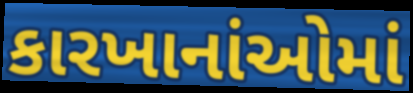
કારખાનાંઓમાં